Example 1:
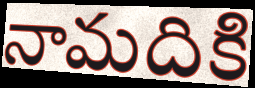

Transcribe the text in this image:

నామదికి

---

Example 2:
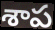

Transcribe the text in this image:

శాప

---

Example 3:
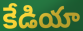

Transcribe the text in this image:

కేడియా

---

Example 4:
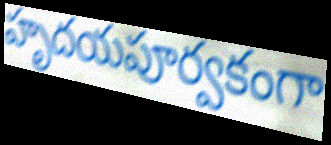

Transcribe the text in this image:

హృదయపూర్వకంగా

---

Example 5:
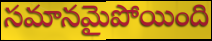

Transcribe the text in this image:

సమానమైపోయింది